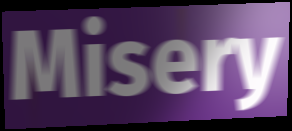
Misery